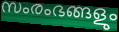
സംരംഭങ്ങളും